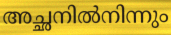
അച്ഛനിൽനിന്നും